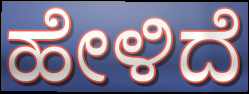
ಹೇಳಿದೆ